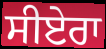
ਸੀਏਰਾ